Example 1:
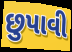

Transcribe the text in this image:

છુપાવી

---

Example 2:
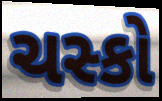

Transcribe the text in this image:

ચસ્કો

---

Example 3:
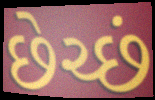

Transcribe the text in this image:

છેચ્છં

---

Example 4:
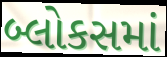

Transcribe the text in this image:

બ્લોકસમાં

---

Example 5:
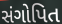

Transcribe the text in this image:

સંગોપિત